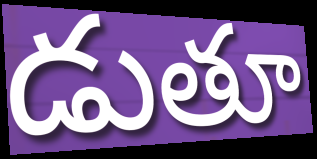
డుతూ